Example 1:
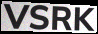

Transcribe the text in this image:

VSRK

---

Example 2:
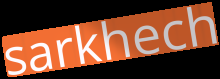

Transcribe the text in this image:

sarkhech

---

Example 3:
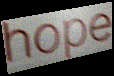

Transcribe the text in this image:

hope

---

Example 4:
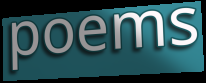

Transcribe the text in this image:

poems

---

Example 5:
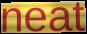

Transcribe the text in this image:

neat